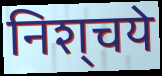
निश्चये